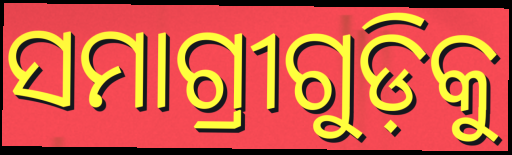
ସମାଗ୍ରୀଗୁଡ଼ିକୁ